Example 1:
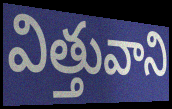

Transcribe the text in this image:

విత్తువాని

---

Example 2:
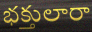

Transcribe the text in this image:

భక్తులారా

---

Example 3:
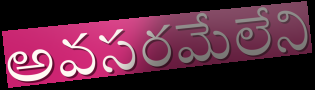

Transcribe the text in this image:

అవసరమేలేని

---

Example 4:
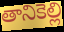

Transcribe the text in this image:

తానికెల్లి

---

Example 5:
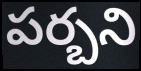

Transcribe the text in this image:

పర్బని